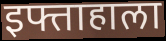
इफ्ताहाला